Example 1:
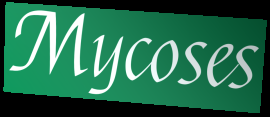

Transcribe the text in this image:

Mycoses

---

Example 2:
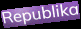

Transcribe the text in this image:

Republika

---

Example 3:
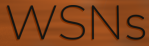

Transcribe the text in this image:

WSNs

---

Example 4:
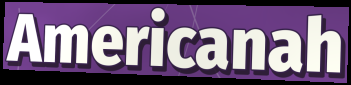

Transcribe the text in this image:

Americanah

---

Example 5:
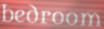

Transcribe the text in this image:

bedroom